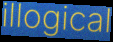
illogical